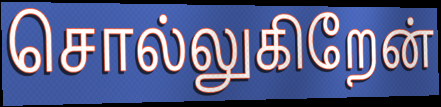
சொல்லுகிறேன்